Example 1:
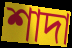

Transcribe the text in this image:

শাদা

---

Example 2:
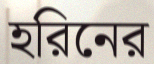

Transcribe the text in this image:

হরিনের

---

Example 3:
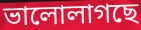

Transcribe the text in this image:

ভালোলাগছে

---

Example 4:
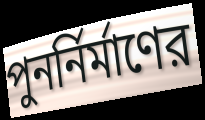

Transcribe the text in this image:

পুনর্নির্মাণের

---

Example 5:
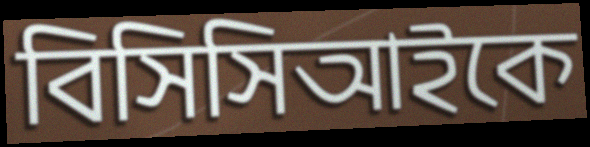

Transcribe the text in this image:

বিসিসিআইকে